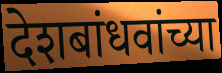
देशबांधवांच्या